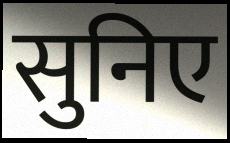
सुनिए